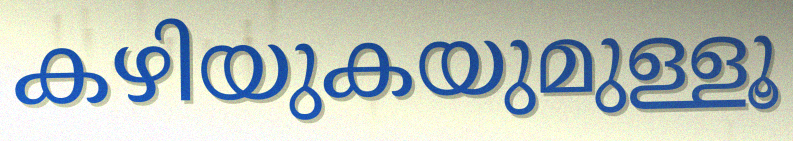
കഴിയുകയുമുള്ളൂ